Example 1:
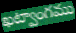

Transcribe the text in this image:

ఖట్వాంగము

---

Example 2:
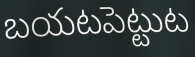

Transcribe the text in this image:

బయటపెట్టుట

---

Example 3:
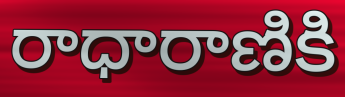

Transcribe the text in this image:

రాధారాణికి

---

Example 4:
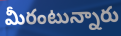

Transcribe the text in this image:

మీరంటున్నారు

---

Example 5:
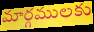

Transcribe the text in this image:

మార్గములకు